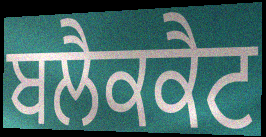
ਬਲੈਕਕੈਟ